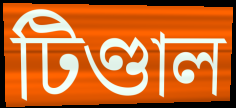
টিণ্ডাল